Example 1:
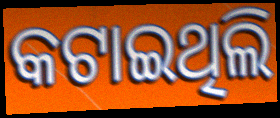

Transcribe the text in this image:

କଟାଇଥିଲି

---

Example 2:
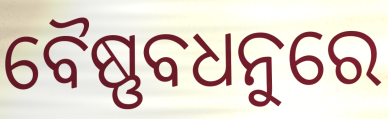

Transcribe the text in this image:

ବୈଷ୍ଣବଧନୁରେ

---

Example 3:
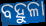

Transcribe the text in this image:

ବହୁଳା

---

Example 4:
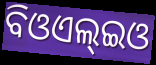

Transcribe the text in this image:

ବିଓଏଲ୍ଇଓ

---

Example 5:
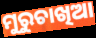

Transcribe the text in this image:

ମୁରୁଚାଖିଆ